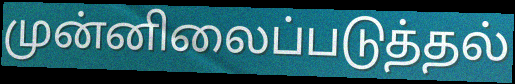
முன்னிலைப்படுத்தல்